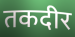
तकदीर